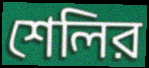
শেলির